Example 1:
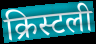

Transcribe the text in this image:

क्रिस्टली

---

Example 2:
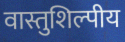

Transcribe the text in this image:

वास्तुशिल्पीय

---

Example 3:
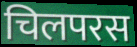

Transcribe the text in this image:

चिलपरस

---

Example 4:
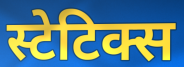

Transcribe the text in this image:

स्टेटिक्स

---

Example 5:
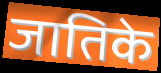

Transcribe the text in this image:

जातिके